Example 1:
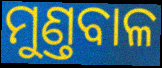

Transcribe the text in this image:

ମୁଣ୍ତବାଳ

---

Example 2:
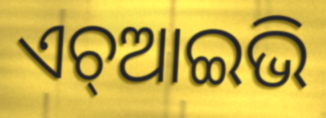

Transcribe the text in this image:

ଏଚ୍ଆଇଭି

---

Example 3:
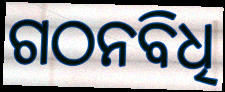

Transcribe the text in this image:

ଗଠନବିଧି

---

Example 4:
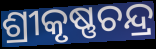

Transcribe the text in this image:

ଶ୍ରୀକୃଷ୍ଣଚନ୍ଦ୍ର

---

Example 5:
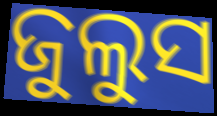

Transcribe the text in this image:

ଜୁଲୁସ